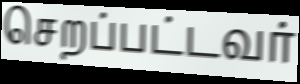
செறப்பட்டவர்